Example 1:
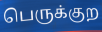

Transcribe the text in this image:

பெருக்குற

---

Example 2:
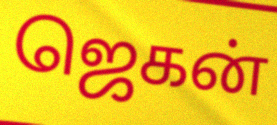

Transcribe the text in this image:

ஜெகன்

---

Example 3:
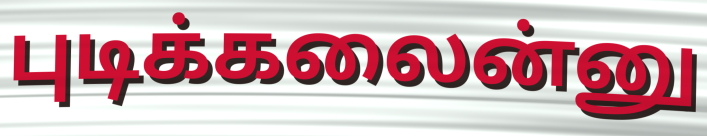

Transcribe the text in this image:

புடிக்கலைன்னு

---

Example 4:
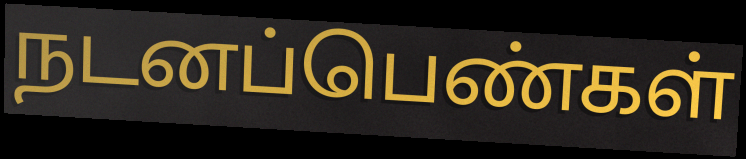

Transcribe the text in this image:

நடனப்பெண்கள்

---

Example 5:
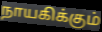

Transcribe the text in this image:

நாயகிக்கும்